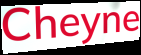
Cheyne